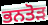
ਭਨਤੋੜ